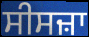
ਸੀਸਜ਼ਾ